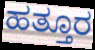
ಹತ್ತೂರ